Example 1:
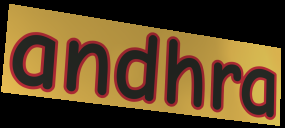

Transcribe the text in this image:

andhra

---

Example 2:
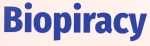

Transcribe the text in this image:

Biopiracy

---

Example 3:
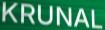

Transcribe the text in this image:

KRUNAL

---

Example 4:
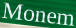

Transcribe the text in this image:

Monem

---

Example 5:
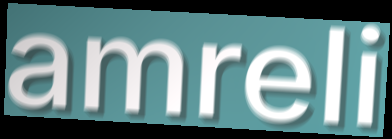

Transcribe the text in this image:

amreli